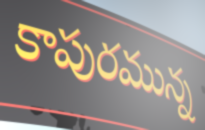
కాపురమున్న